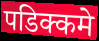
पडिक्कमे